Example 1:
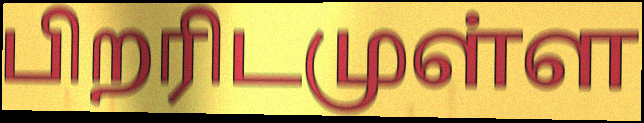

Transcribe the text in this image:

பிறரிடமுள்ள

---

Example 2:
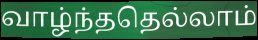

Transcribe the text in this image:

வாழ்ந்ததெல்லாம்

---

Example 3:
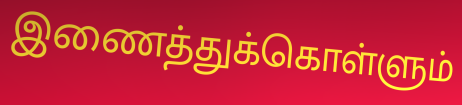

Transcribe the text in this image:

இணைத்துக்கொள்ளும்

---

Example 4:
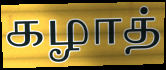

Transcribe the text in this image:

கழாத்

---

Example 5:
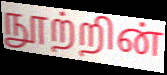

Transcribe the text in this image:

நூற்றின்